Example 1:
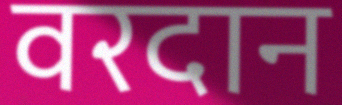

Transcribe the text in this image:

वरदान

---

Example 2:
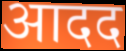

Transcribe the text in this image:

आदद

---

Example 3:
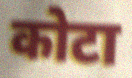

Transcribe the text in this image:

कोटा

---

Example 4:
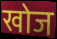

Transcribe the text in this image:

खोज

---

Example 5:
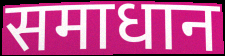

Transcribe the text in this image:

समाधान